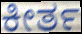
ಕೀರ್ತ